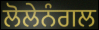
ਲੋਲੇਨੰਗਲ